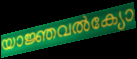
യാജ്ഞവൽക്യോ